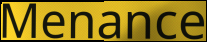
Menance